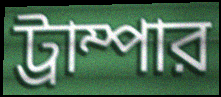
ট্রাম্পার